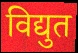
विद्युत